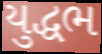
યુદ્ધભ